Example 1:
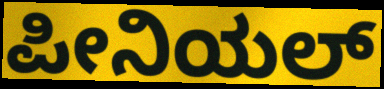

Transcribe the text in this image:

ಪೀನಿಯಲ್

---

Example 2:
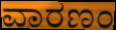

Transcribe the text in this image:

ವಾರಣಂ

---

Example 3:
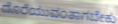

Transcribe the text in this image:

ದೊರೆಯುವಂತಾಗಬೇಕು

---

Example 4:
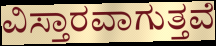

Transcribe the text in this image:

ವಿಸ್ತಾರವಾಗುತ್ತವೆ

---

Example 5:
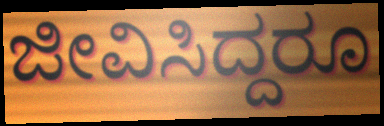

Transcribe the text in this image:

ಜೀವಿಸಿದ್ದರೂ